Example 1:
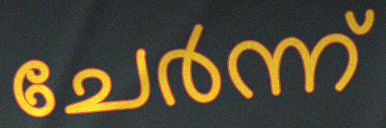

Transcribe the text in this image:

ചേർന്ന്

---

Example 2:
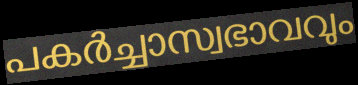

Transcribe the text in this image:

പകർച്ചാസ്വഭാവവും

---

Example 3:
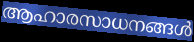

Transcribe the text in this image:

ആഹാരസാധനങ്ങൾ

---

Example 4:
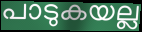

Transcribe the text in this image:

പാടുകയല്ല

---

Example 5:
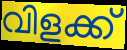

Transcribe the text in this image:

വിളക്ക്